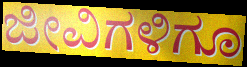
ಜೀವಿಗಳಿಗೂ